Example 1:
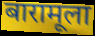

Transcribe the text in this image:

बारामूला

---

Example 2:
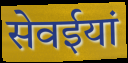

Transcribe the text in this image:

सेवईयां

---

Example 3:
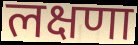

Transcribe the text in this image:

लक्षणा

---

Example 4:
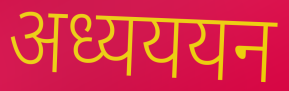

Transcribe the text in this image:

अध्यययन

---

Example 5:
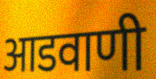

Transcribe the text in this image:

आडवाणी